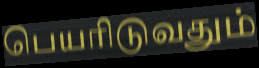
பெயரிடுவதும்